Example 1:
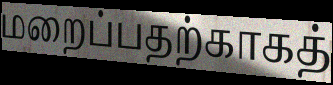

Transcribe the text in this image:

மறைப்பதற்காகத்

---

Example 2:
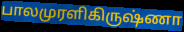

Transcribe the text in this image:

பாலமுரளிகிருஷ்ணா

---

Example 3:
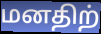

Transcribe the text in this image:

மனதிற்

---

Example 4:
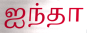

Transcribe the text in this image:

ஐந்தா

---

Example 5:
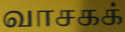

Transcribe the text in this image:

வாசகக்